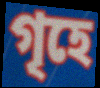
গৃহে